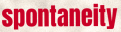
spontaneity